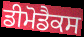
ਡੀਮੋਡੈਕਸ